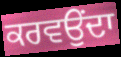
ਕਰਵਉਂਦਾ